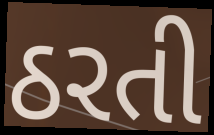
ઠરતી